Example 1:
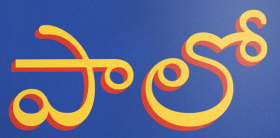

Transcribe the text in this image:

పాలో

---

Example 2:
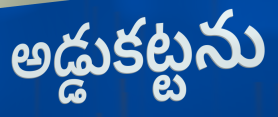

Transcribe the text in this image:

అడ్డుకట్టను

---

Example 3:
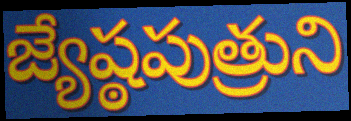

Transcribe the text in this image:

జ్యేష్ఠపుత్రుని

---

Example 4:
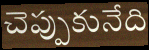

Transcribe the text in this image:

చెప్పుకునేది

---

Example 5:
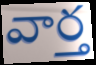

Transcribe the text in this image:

వార్త